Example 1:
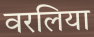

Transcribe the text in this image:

वरलिया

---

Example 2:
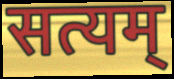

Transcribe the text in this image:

सत्यम्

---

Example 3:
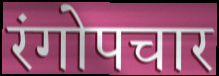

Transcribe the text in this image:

रंगोपचार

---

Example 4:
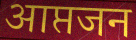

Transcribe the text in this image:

आप्तजन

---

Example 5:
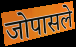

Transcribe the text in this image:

जोपासले